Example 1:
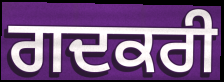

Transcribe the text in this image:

ਗਦਕਰੀ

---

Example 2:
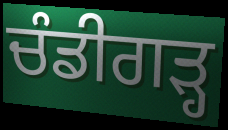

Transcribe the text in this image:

ਚੰਡੀਗੜ੍ਹ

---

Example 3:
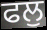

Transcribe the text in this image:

ਫਲੁ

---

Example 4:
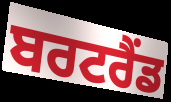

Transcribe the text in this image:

ਬਰਟਰੈਂਡ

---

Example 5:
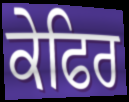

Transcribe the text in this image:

ਕੇਫਿਰ